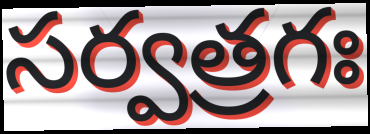
సర్వత్రగః